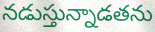
నడుస్తున్నాడతను